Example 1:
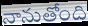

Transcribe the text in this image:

నానుతోంది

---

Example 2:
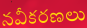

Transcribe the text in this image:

నవీకరణలు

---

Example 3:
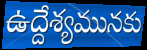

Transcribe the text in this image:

ఉద్దేశ్యమునకు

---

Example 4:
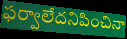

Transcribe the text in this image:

ఫర్వాలేదనిపించినా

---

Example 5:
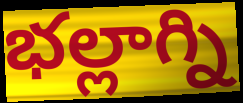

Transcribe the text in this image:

భల్లాగ్ని